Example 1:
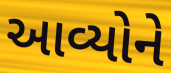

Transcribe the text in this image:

આવ્યોને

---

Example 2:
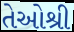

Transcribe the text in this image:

તેઓશ્રી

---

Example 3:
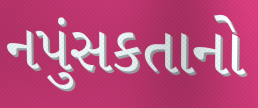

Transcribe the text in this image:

નપુંસકતાનો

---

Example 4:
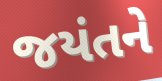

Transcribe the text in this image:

જયંતને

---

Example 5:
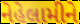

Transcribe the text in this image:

નેહેલામીને